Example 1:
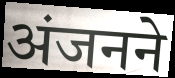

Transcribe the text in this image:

अंजनने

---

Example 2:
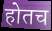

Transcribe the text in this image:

होतच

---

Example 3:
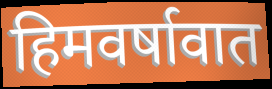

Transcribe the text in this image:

हिमवर्षावात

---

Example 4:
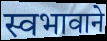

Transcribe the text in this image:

स्वभावाने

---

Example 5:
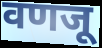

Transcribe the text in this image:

वणजू